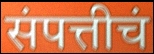
संपत्तीचं